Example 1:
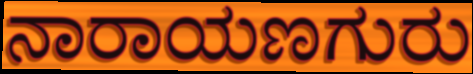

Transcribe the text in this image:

ನಾರಾಯಣಗುರು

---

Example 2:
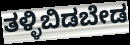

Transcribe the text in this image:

ತಳ್ಳಿಬಿಡಬೇಡ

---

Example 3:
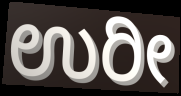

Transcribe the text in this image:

ಉರೀ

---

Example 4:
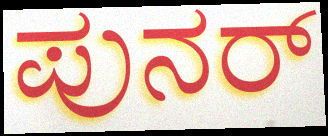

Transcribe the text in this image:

ಪುನರ್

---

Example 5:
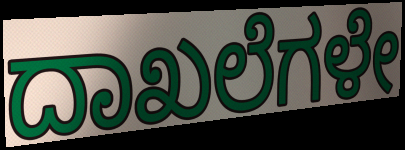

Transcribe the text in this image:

ದಾಖಲೆಗಳೇ